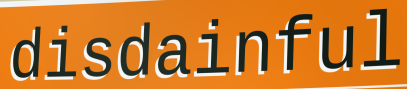
disdainful